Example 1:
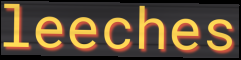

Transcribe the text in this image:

leeches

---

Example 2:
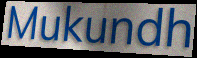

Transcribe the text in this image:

Mukundh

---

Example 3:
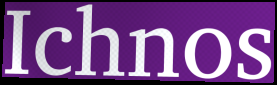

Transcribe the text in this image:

Ichnos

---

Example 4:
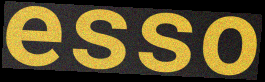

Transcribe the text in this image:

esso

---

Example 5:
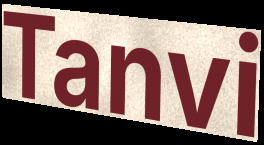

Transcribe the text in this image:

Tanvi